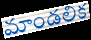
మాండలిక